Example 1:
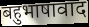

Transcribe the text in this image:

बहुभाषावाद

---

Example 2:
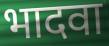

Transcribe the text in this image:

भादवा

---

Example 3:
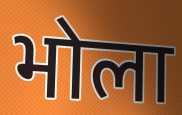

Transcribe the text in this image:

भोला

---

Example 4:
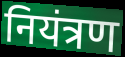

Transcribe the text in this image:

नियंत्रण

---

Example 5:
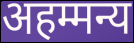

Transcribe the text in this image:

अहम्मन्य